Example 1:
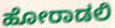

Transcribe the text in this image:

ಹೋರಾಡಲಿ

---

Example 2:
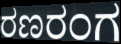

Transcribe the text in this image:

ರಣರಂಗ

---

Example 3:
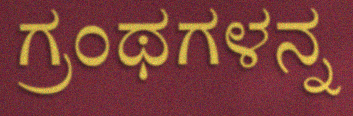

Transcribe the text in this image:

ಗ್ರಂಥಗಳನ್ನ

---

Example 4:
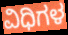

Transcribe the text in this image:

ವಿಧಿಗಳ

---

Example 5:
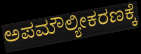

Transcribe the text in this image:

ಅಪಮೌಲ್ಯೀಕರಣಕ್ಕೆ